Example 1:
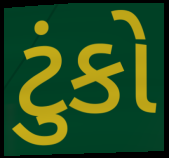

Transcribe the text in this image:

ટુંકો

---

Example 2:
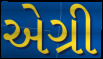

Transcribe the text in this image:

એગ્રી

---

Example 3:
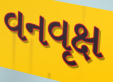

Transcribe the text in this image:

વનવૃક્ષ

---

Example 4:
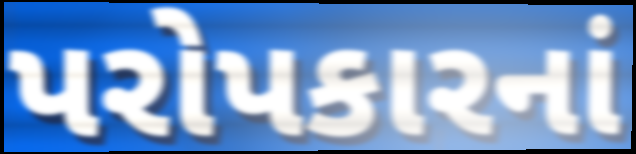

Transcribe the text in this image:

પરોપકારનાં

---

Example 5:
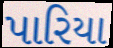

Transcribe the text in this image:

પારિયા